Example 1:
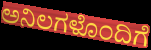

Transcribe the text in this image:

ಅನಿಲಗಳೊಂದಿಗೆ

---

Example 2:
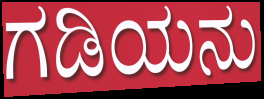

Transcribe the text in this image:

ಗಡಿಯನು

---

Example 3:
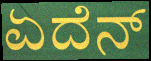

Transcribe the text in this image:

ಏದೆನ್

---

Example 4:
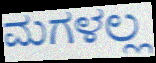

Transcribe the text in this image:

ಮಗಳಲ್ಲ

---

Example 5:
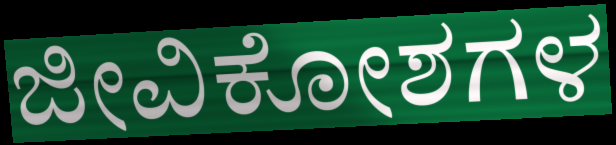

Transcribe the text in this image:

ಜೀವಿಕೋಶಗಳ